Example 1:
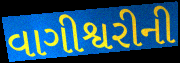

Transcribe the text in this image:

વાગીશ્વરીની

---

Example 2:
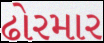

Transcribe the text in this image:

ઢોરમાર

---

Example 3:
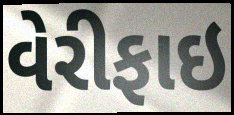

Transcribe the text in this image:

વેરીફાઇ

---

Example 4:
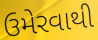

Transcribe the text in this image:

ઉમેરવાથી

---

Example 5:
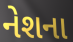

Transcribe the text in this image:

નેશના